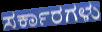
ಸರ್ಕಾರಗಳು